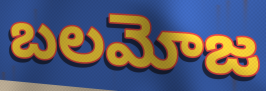
బలమోజ